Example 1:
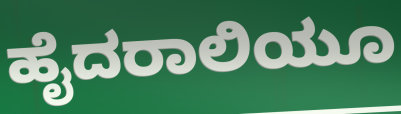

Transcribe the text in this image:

ಹೈದರಾಲಿಯೂ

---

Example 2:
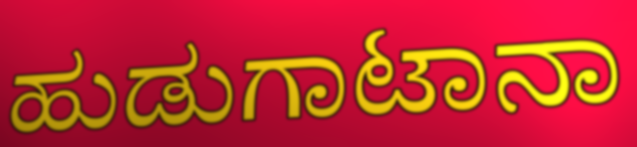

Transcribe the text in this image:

ಹುಡುಗಾಟಾನಾ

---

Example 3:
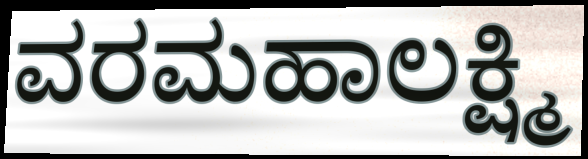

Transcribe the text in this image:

ವರಮಹಾಲಕ್ಷ್ಮಿ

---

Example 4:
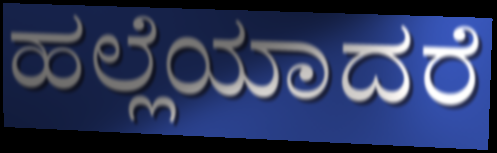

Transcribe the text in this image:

ಹಲ್ಲೆಯಾದರೆ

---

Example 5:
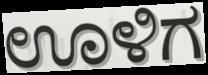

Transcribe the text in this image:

ಊಳಿಗ